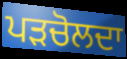
ਪੜਚੋਲਦਾ